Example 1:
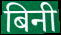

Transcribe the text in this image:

बिनी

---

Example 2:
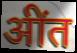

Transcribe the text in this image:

अींत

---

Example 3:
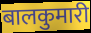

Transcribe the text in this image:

बालकुमारी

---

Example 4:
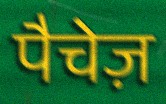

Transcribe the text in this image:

पैचेज़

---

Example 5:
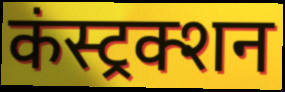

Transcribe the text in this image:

कंस्ट्रक्शन